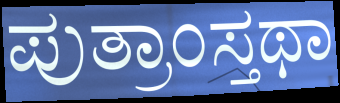
ಪುತ್ರಾಂಸ್ತಥಾ